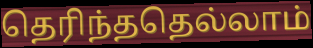
தெரிந்ததெல்லாம்